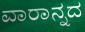
ವಾರಾನ್ನದ